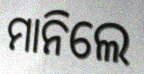
ମାନିଲେ